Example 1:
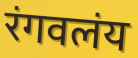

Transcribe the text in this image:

रंगवलंय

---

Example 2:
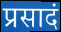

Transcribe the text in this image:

प्रसादं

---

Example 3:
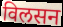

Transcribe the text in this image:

विलसन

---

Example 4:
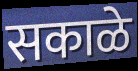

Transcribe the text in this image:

सकाळे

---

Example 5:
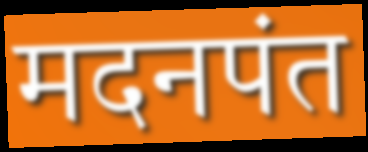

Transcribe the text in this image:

मदनपंत